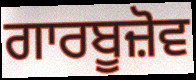
ਗਾਰਬੂਜ਼ੋਵ